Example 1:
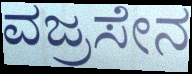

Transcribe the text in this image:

ವಜ್ರಸೇನ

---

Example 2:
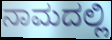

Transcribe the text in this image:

ನಾಮದಲ್ಲಿ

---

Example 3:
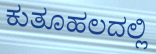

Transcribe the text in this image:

ಕುತೂಹಲದಲ್ಲಿ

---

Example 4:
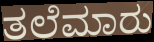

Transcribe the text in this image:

ತಲೆಮಾರು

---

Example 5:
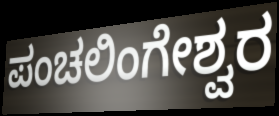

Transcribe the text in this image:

ಪಂಚಲಿಂಗೇಶ್ವರ